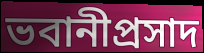
ভবানীপ্রসাদ